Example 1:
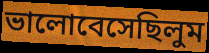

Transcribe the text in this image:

ভালোবেসেছিলুম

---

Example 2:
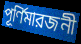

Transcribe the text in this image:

পূর্ণিমারজনী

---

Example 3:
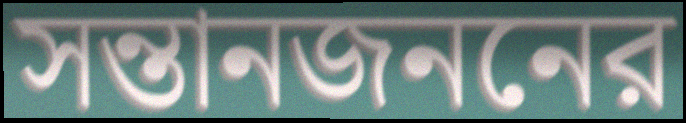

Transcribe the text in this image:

সন্তানজননের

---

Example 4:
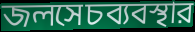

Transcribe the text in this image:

জলসেচব্যবস্থার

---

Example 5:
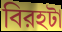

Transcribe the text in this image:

বিরহটা